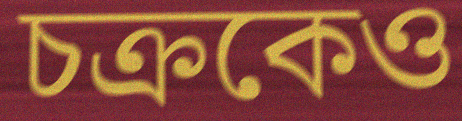
চক্রকেও